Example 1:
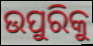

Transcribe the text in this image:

ଉପୁରିକୁ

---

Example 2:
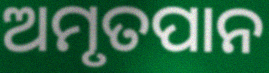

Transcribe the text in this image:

ଅମୃତପାନ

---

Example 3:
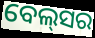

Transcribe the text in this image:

ବେଲ୍‌ସର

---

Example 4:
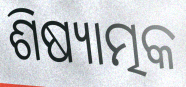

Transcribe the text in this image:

ଶିଷ୍ୟାତ୍ମକ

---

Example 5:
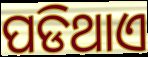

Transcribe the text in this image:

ପଡିଥାଏ